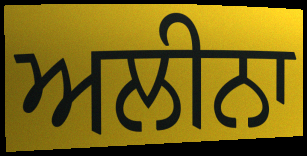
ਅਲੀਨਾ